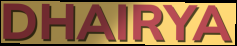
DHAIRYA